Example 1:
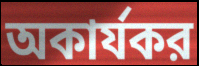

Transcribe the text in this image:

অকার্যকর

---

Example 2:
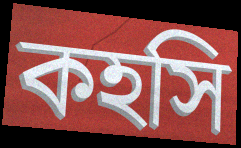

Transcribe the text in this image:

কহসি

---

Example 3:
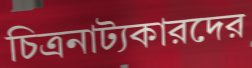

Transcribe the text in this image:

চিত্রনাট্যকারদের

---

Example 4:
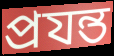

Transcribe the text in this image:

প্রযন্ত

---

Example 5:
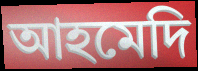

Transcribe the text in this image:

আহমেদি